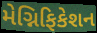
મેગ્નિફિકેશન